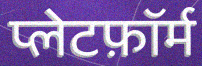
प्लेटफ़ॉर्म